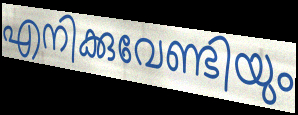
എനിക്കുവേണ്ടിയും